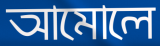
আমোলে